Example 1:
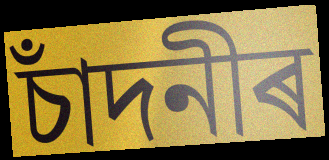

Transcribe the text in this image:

চাঁদনীৰ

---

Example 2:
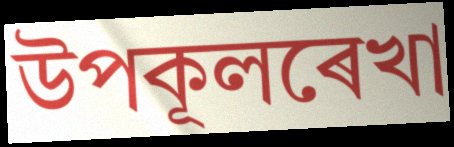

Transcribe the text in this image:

উপকূলৰেখা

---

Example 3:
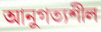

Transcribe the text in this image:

আনুগত্যশীল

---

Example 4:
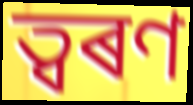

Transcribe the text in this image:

ত্বৰণ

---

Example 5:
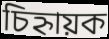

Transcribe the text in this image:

চিহ্নায়ক